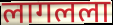
लागलला